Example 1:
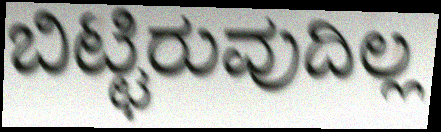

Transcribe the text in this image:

ಬಿಟ್ಟಿರುವುದಿಲ್ಲ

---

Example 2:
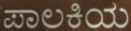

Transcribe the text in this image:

ಪಾಲಕಿಯ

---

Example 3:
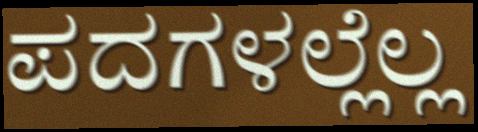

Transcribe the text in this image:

ಪದಗಳಲ್ಲೆಲ್ಲ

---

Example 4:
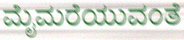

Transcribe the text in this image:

ಮೈಮರೆಯುವಂತೆ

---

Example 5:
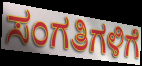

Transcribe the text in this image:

ಸಂಗತಿಗಳಿಗೆ